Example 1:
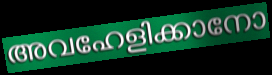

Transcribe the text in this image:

അവഹേളിക്കാനോ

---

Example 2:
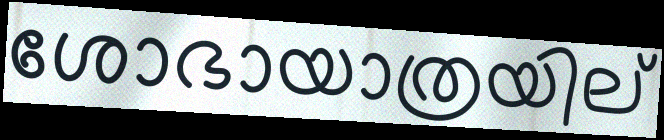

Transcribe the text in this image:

ശോഭായാത്രയില്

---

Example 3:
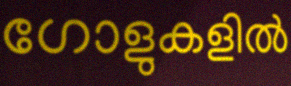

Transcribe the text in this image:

ഗോളുകളിൽ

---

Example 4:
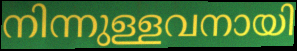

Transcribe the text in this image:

നിന്നുള്ളവനായി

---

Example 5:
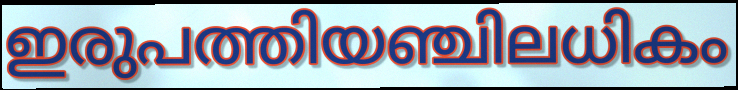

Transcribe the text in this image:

ഇരുപത്തിയഞ്ചിലധികം